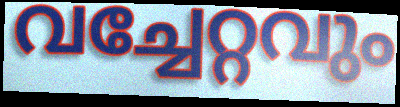
വച്ചേറ്റവും